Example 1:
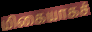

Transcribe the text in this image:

மிகையாகச்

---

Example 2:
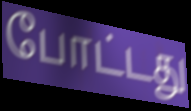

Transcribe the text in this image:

போட்டது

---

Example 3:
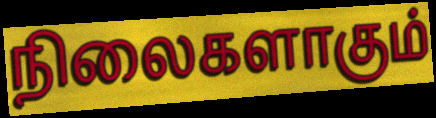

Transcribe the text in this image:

நிலைகளாகும்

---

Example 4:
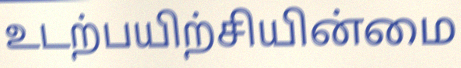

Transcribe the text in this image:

உடற்பயிற்சியின்மை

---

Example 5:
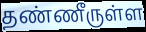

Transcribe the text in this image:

தண்ணீருள்ள